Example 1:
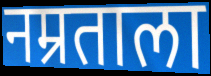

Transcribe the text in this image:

नम्रताला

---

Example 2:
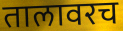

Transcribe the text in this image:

तालावरच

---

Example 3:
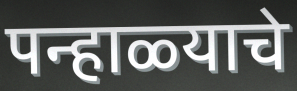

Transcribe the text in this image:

पन्हाळ्याचे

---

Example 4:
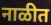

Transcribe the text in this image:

नाळीत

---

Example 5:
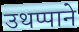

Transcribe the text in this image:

उथप्पाने